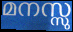
മനസ്സു